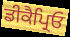
ਡੀਕੈਪ੍ਰਿਓ